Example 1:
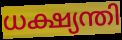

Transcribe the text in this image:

ധക്ഷ്യന്തി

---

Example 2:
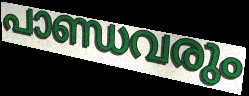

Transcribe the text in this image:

പാണ്ഡവരും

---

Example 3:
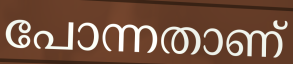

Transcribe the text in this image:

പോന്നതാണ്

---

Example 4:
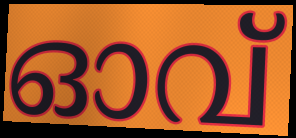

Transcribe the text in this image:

ഓവ്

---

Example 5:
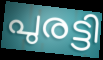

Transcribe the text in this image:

പുരട്ടി